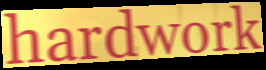
hardwork